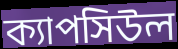
ক্যাপসিউল